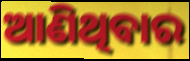
ଆଣିଥିବାର